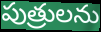
పుత్రులను